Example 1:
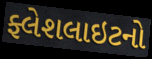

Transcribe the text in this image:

ફ્લેશલાઇટનો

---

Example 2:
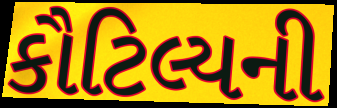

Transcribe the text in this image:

કૌટિલ્યની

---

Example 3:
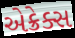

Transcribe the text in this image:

એક્રેક્સ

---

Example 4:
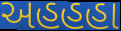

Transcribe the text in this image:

અહહહા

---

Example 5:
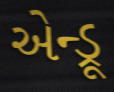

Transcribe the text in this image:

એન્ડ્રૂ